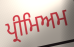
ਪ੍ਰੀਮਿਅਮ